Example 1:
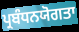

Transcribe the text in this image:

ਪ੍ਰਬੰਧਨਯੋਗਤਾ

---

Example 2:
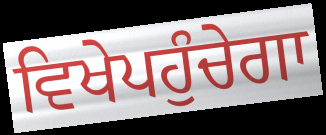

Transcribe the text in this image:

ਵਿਖੇਪਹੁੰਚੇਗਾ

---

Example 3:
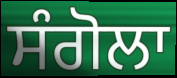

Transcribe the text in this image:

ਸੰਗੋਲਾ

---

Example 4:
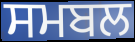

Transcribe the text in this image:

ਸਮਬਲ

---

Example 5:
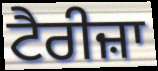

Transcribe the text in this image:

ਟੈਰੀਜ਼ਾ